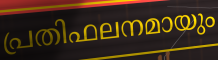
പ്രതിഫലനമായും